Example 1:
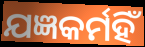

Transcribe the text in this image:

ଯଜ୍ଞକର୍ମହିଁ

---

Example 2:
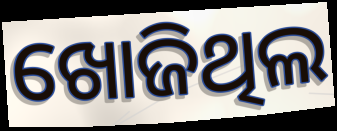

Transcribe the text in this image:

ଖୋଜିଥିଲ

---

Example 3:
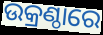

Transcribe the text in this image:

ଉକ୍ରଣ୍ଠାରେ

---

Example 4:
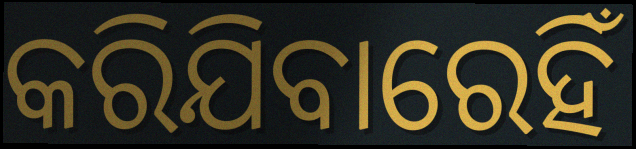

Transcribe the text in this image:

କରିଯିବାରେହିଁ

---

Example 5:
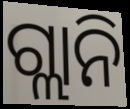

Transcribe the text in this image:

ଗ୍ଲାନି